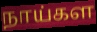
நாய்கள